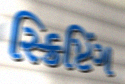
સ્ક્રિપ્ટિંગ